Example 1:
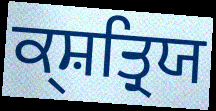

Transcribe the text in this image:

ਕ੍ਸ਼ਤ੍ਰਿਯ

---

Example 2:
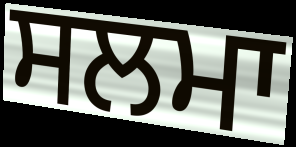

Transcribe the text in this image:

ਸਲਮਾ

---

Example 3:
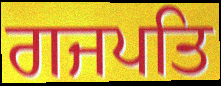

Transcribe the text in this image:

ਗਜਪਤਿ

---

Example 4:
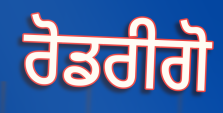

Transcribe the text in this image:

ਰੋਡਰੀਗੋ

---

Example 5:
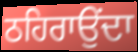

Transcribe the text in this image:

ਠਹਿਰਾਉਂਦਾ